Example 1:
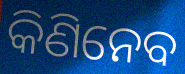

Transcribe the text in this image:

କିଣିନେବ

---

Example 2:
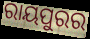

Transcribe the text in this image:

ରାୟପୁରର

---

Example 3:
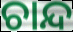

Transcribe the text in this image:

ଚାନ୍ଦ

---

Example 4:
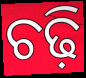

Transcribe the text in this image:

ଚଢ଼ି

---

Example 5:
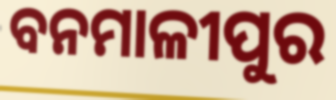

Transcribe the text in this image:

ବନମାଳୀପୁର